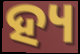
ହ୍ୟ